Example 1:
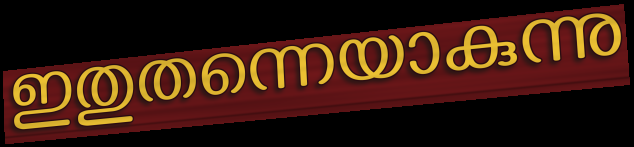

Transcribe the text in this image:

ഇതുതന്നെയാകുന്നു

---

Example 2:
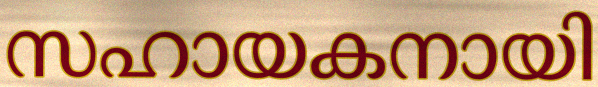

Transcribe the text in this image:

സഹായകനായി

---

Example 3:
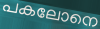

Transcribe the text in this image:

പകലോനെ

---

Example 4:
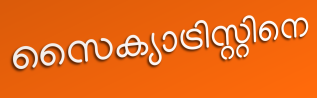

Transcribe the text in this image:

സൈക്യാട്രിസ്റ്റിനെ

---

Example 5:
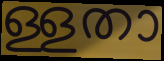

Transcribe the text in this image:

ള്ളതാ